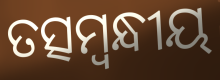
ତତ୍ସମ୍ବନ୍ଧୀୟ